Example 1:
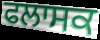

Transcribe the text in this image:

ਫਲਾਸਕ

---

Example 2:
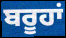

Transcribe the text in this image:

ਬਰੂਹਾਂ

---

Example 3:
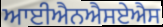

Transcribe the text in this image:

ਆਈਐਨਐਸਏਐਸ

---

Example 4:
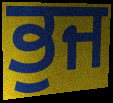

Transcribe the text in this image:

ਭੁਜ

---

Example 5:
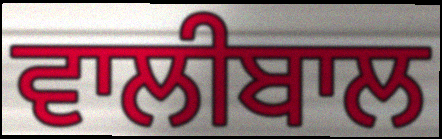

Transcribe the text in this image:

ਵਾਲੀਬਾਲ